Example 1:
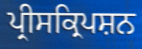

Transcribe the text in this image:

ਪ੍ਰੀਸਕ੍ਰਿਪਸ਼ਨ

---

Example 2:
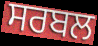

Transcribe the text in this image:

ਸਰਬਲ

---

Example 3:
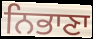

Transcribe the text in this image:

ਨਿਭਾਣਾ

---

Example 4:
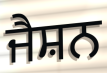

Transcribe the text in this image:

ਜੈਸ਼ਨ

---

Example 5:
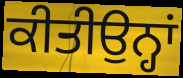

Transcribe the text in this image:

ਕੀਤੀਉਨ੍ਹਾਂ